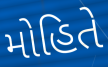
મોહિતે